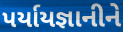
પર્યાયજ્ઞાનીને